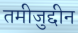
तमीजुद्दीन